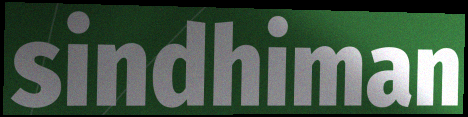
sindhiman